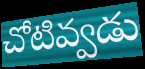
చోటివ్వడు